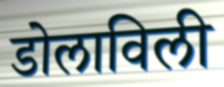
डोलाविली